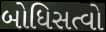
બોધિસત્વો